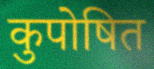
कुपोषित